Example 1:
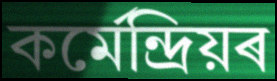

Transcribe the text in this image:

কৰ্মেন্দ্ৰিয়ৰ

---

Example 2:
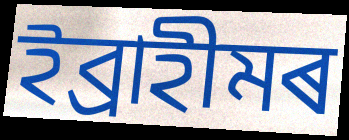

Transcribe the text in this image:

ইব্ৰাহীমৰ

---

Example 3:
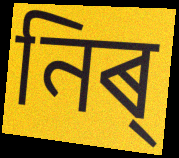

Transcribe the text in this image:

নিৰ্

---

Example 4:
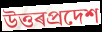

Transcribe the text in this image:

উত্তৰপ্ৰদেশ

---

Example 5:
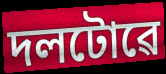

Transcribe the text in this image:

দলটোৱে